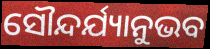
ସୌନ୍ଦର୍ଯ୍ୟାନୁଭବ